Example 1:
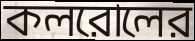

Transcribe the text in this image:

কলরোলের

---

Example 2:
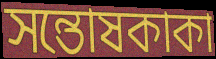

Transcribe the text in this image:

সন্তোষকাকা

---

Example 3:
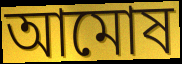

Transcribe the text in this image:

আমোষ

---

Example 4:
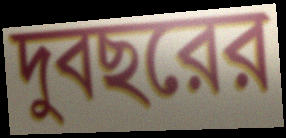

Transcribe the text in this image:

দুবছরের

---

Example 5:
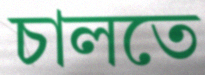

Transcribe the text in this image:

চালতে